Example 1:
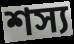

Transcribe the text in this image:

শস্য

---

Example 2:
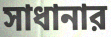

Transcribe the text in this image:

সাধানার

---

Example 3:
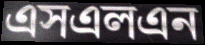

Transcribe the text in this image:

এসএলএন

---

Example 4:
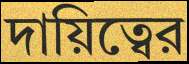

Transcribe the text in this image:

দায়িত্বের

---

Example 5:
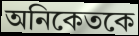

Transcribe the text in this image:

অনিকেতকে